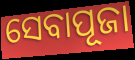
ସେବାପୂଜା